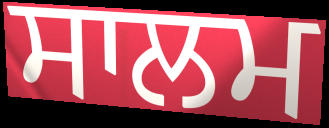
ਸਾਲਮ